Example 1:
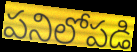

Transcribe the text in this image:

పనిలోపడి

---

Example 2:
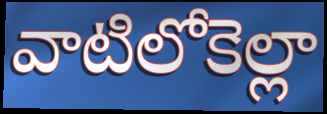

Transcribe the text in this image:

వాటిలోకెల్లా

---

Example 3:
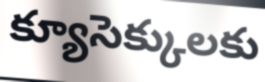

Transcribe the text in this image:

క్యూసెక్కులకు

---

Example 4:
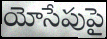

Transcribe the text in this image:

యోసేపుపై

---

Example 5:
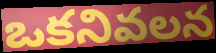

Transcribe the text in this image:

ఒకనివలన